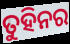
ତୁହିନର